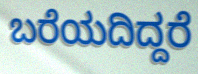
ಬರೆಯದಿದ್ದರೆ